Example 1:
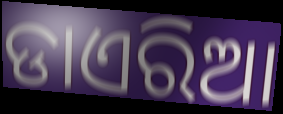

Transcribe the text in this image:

ଡାଏରିଆ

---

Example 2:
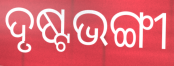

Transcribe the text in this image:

ଦୃଷ୍ଟଭଙ୍ଗୀ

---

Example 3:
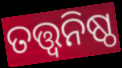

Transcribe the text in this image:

ତତ୍ତ୍ୱନିଷ୍ଠ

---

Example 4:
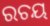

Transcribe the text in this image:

ରଚୟ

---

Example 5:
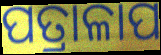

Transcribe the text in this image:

ପତ୍ରାଳାପ